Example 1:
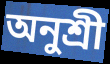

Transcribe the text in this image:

অনুশ্রী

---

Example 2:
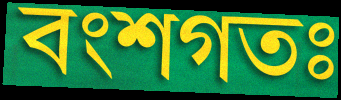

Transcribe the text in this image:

বংশগতঃ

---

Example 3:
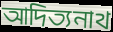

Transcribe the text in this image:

আদিত্যনাথ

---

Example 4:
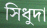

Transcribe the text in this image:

সিধুদা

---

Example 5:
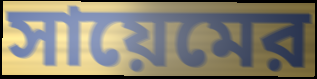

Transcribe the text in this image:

সায়েমের